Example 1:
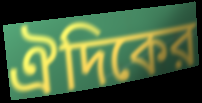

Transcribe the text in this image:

ঐদিকের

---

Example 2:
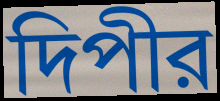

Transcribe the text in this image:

দিপীর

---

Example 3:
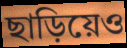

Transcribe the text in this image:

ছাড়িয়েও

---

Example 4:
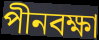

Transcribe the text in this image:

পীনবক্ষা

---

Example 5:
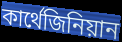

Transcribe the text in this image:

কার্থেজিনিয়ান